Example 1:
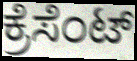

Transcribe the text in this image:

ಕ್ರೆಸೆಂಟ್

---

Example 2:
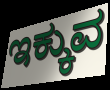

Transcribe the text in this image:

ಇಕ್ಕುವ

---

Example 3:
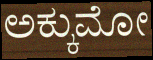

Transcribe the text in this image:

ಅಕ್ಕುಮೋ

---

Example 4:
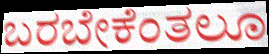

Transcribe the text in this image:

ಬರಬೇಕೆಂತಲೂ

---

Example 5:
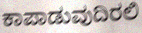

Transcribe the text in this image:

ಕಾಪಾಡುವುದಿರಲಿ